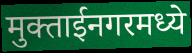
मुक्ताईनगरमध्ये